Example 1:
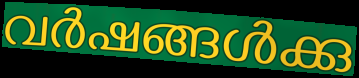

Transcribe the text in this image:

വർഷങ്ങൾക്കു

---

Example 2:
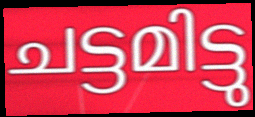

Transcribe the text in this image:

ചട്ടമിട്ടു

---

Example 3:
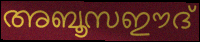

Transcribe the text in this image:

അബൂസഈദ്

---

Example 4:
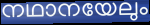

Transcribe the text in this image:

നഥാനയേലും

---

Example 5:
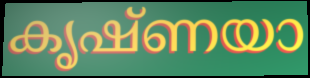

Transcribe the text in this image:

കൃഷ്ണയാ